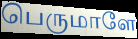
பெருமாளே